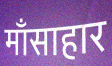
माँसाहार